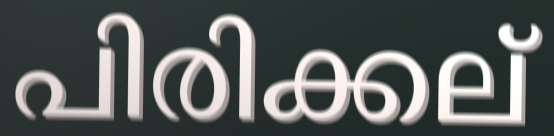
പിരിക്കല്